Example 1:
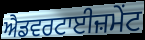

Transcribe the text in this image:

ਐਡਵਰਟਾਈਜ਼ਮੇਂਟ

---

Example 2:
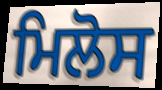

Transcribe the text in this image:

ਮਿਲੋਸ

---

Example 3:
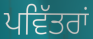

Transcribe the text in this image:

ਪਵਿੱਤਰਾਂ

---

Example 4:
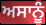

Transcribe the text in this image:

ਅਸਾਨੂੰ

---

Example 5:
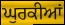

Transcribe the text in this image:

ਘੁਰਕੀਆਂ